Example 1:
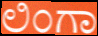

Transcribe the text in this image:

ಲಿಂಗಾ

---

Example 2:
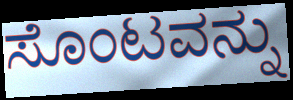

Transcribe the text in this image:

ಸೊಂಟವನ್ನು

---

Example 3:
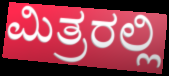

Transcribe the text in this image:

ಮಿತ್ರರಲ್ಲಿ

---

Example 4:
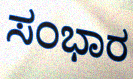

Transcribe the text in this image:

ಸಂಭಾರ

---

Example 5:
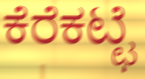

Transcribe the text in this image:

ಕೆರೆಕಟ್ಟೆ